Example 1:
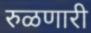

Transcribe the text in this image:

रुळणारी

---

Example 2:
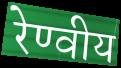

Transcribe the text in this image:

रेण्वीय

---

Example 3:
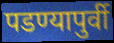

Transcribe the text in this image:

पडण्यापुर्वी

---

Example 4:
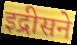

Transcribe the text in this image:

इद्रीसने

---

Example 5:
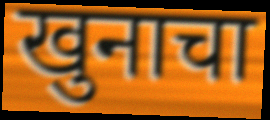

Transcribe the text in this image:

खुनाचा